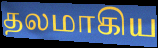
தலமாகிய